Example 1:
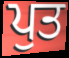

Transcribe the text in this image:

ਪੁਤ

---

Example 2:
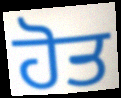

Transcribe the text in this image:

ਹੋਤ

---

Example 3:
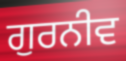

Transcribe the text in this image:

ਗੁਰਨੀਵ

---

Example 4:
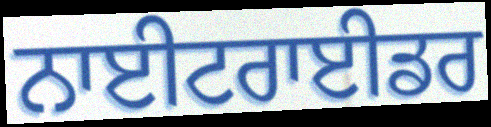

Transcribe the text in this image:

ਨਾਈਟਰਾਈਡਰ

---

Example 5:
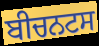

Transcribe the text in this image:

ਬੀਚਨਟਸ